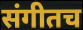
संगीतच